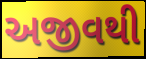
અજીવથી